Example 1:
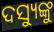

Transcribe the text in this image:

ଦସ୍ୟୁଙ୍କୁ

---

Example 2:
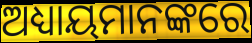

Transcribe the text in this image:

ଅଧ୍ୟାୟମାନଙ୍କରେ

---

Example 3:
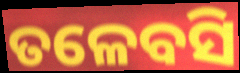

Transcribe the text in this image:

ତଳେବସି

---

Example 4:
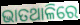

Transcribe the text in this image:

ଭାତଥାଳିରେ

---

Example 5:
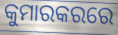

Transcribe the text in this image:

କୁମାରକରରେ